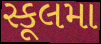
સ્કૂલમા